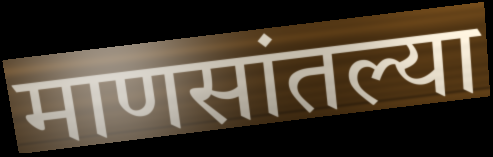
माणसांतल्या